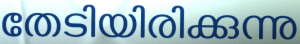
തേടിയിരിക്കുന്നു